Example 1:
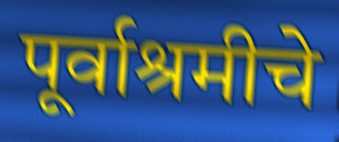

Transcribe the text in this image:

पूर्वाश्रमीचे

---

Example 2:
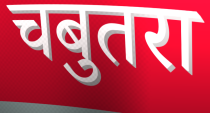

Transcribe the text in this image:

चबुतरा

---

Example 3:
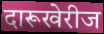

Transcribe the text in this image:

दारूखेरीज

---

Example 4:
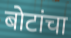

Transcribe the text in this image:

बोटांचा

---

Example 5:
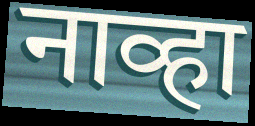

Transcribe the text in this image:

नाव्हा